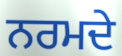
ਨਰਮਦੇ